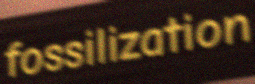
fossilization